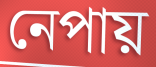
নেপায়